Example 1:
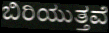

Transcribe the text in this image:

ಬಿರಿಯುತ್ತವೆ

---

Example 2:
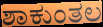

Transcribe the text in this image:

ಶಾಕುಂತಲ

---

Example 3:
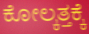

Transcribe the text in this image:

ಕೋಲ್ಕತ್ತಕ್ಕೆ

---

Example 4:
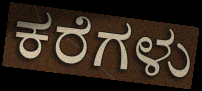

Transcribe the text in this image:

ಕರೆಗಳು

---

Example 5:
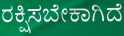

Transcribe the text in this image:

ರಕ್ಷಿಸಬೇಕಾಗಿದೆ